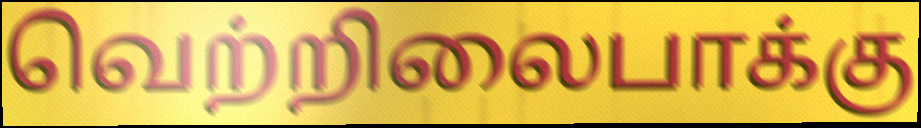
வெற்றிலைபாக்கு